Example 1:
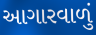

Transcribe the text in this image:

આગારવાળું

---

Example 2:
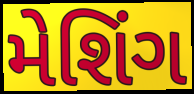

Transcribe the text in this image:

મેશિંગ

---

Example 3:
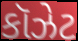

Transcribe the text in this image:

કૉઝેટ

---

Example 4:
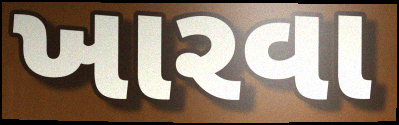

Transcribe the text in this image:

ખારવા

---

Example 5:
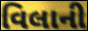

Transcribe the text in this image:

વિલાની